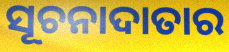
ସୂଚନାଦାତାର